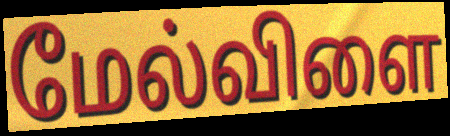
மேல்விளை